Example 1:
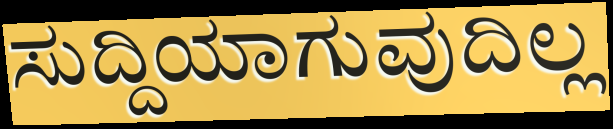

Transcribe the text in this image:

ಸುದ್ದಿಯಾಗುವುದಿಲ್ಲ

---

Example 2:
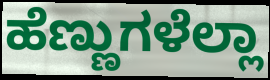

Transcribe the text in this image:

ಹೆಣ್ಣುಗಳೆಲ್ಲಾ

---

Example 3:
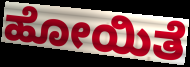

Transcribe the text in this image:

ಹೋಯಿತೆ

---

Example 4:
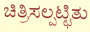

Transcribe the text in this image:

ಚಿತ್ರಿಸಲ್ಪಟ್ಟಿತು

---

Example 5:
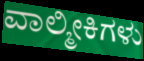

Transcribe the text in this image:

ವಾಲ್ಮೀಕಿಗಳು